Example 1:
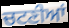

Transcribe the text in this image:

ਚਟਣੀਆਂ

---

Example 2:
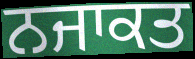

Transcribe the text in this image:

ਨਜਾਕਤ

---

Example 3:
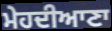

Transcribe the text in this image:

ਮੇਹਦੀਆਣਾ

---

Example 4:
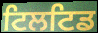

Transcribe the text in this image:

ਟਿਲਟਿਡ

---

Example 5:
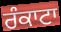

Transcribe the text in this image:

ਰੰਕਾਟਾ